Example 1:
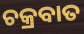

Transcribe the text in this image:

ଚକ୍ରବାତ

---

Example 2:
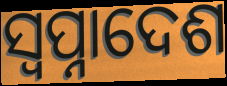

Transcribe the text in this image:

ସ୍ବପ୍ନାଦେଶ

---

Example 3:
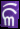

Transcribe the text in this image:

ଳି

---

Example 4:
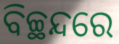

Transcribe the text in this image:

ବିଚ୍ଛନ୍ଦରେ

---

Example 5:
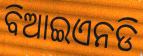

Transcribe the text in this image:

ବିଆଇଏନଡି